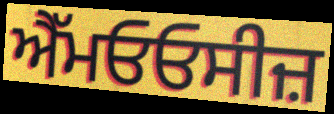
ਐੱਮਓਓਸੀਜ਼